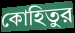
কোহিতুর